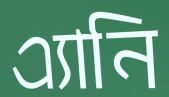
এ্যানি